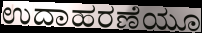
ಉದಾಹರಣೆಯೂ